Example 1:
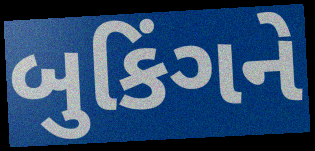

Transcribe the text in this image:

બુકિંગને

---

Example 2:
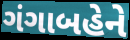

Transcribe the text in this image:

ગંગાબહેને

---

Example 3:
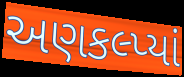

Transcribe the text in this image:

અણકલ્પ્યાં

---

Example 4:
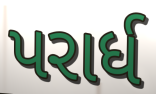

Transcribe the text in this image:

પરાર્ધ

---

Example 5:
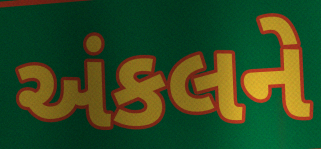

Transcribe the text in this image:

અંકલને